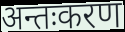
अन्तःकरण